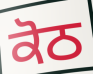
ਕੋਠ